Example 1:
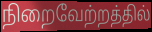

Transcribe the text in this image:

நிறைவேற்றத்தில்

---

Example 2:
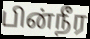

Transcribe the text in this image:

பின்நீர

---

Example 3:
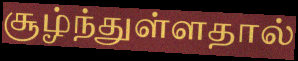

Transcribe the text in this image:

சூழ்ந்துள்ளதால்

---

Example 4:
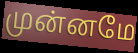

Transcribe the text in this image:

முன்னமே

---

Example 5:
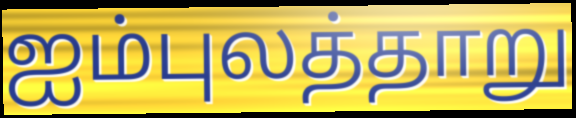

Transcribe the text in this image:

ஐம்புலத்தாறு